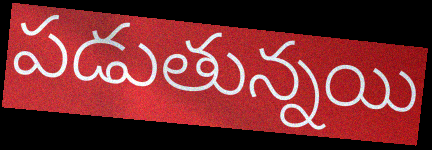
పడుతున్నయి